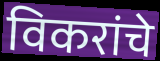
विकरांचे